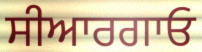
ਸੀਆਰਗਾਓ